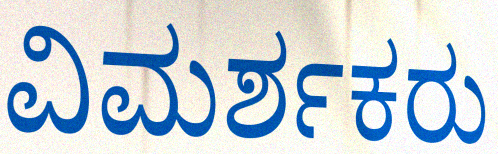
ವಿಮರ್ಶಕರು